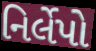
નિર્લેપો